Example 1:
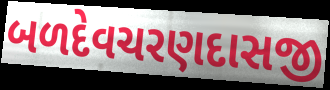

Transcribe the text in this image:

બળદેવચરણદાસજી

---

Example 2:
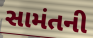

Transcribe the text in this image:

સામંતની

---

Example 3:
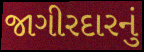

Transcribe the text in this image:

જાગીરદારનું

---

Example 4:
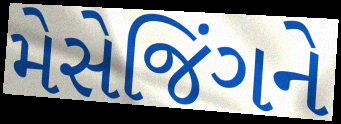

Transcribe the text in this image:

મેસેજિંગને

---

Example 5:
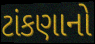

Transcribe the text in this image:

ટાંકણાનો